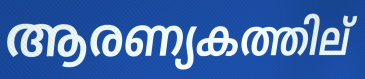
ആരണ്യകത്തില്